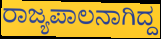
ರಾಜ್ಯಪಾಲನಾಗಿದ್ದ